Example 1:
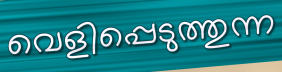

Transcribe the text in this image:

വെളിപ്പെടുത്തുന്ന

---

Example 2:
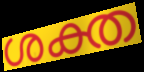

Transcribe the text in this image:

ശക്ത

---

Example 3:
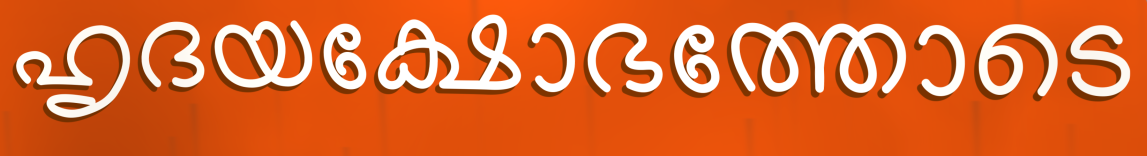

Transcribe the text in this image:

ഹൃദയക്ഷോഭത്തോടെ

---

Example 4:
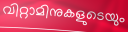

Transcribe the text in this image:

വിറ്റാമിനുകളുടെയും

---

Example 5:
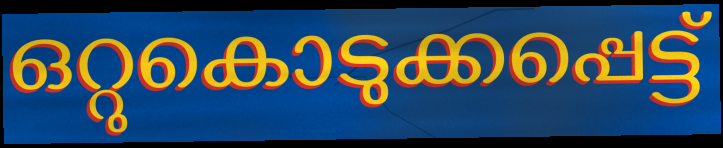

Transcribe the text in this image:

ഒറ്റുകൊടുക്കപ്പെട്ട്